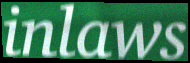
inlaws